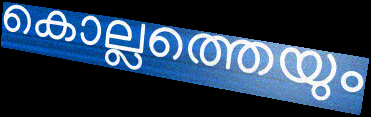
കൊല്ലത്തെയും